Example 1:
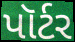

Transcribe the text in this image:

પૉર્ટર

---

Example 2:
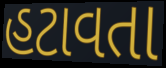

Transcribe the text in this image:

હટાવતા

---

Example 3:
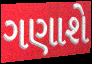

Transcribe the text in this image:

ગણાશે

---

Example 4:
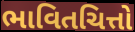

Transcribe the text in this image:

ભાવિતચિત્તો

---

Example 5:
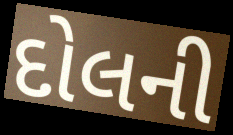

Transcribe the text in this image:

દોલની